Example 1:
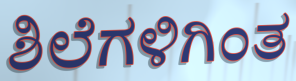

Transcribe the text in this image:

ಶಿಲೆಗಳಿಗಿಂತ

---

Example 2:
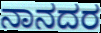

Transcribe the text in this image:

ನಾನದರ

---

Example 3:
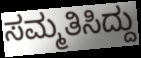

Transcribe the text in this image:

ಸಮ್ಮತಿಸಿದ್ದು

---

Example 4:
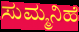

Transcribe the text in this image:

ಸುಮ್ಮನಿಹೆ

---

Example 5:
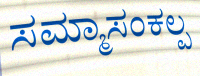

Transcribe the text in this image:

ಸಮ್ಮಾಸಂಕಲ್ಪ